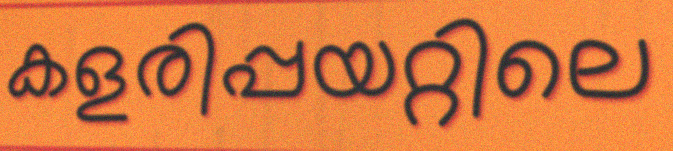
കളരിപ്പയറ്റിലെ